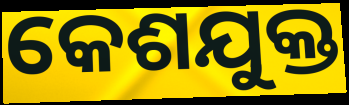
କେଶଯୁକ୍ତ